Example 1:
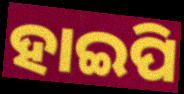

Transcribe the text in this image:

ହାଇପି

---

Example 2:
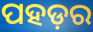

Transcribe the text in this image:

ପହଡ଼ର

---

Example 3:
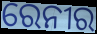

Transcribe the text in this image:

ରେନୀର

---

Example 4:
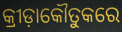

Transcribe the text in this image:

କ୍ରୀଡ଼ାକୌତୁକରେ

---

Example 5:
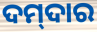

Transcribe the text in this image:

ଦମ୍‌ଦାର